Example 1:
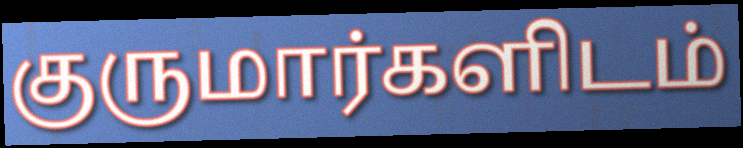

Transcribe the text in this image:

குருமார்களிடம்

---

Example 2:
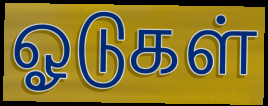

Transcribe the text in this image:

ஓடுகள்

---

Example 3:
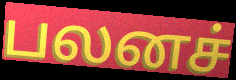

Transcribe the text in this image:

பலனச்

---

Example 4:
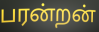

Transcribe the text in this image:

பரன்றன்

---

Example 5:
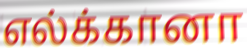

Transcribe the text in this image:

எல்க்கானா